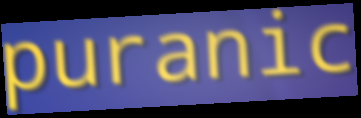
puranic